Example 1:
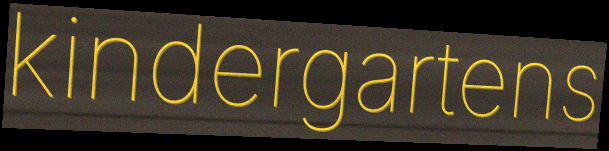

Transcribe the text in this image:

kindergartens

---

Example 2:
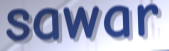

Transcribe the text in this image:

sawar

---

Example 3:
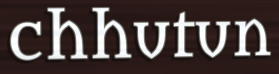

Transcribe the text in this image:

chhutun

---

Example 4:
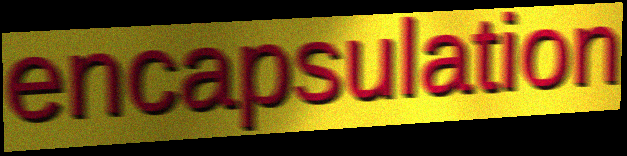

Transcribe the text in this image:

encapsulation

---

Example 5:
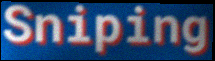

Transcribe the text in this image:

Sniping